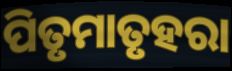
ପିତୃମାତୃହରା